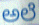
ಅಲೆ